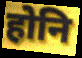
होनि